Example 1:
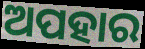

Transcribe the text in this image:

ଅପହାର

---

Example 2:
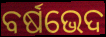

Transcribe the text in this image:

ବର୍ଷଭେଦ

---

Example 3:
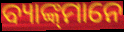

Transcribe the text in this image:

ବ୍ୟାଙ୍କ୍‌ମାନେ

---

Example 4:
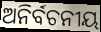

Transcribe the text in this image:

ଅନିର୍ବଚନୀୟ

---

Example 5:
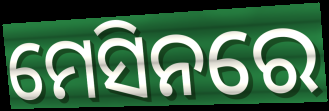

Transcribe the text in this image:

ମେସିନରେ